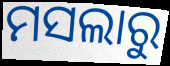
ମସଲାରୁ